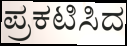
ಪ್ರಕಟಿಸಿದ